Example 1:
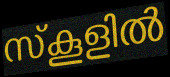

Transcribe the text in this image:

സ്‌കൂളിൽ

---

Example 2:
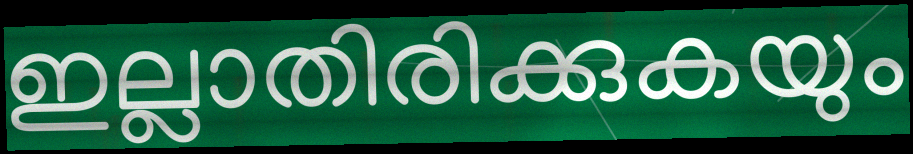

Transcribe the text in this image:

ഇല്ലാതിരിക്കുകയും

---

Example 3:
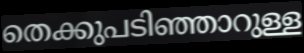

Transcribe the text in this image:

തെക്കുപടിഞ്ഞാറുള്ള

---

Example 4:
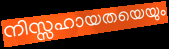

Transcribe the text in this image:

നിസ്സഹായതയെയും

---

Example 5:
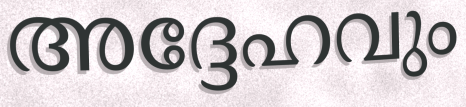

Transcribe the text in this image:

അദ്ദേഹവും